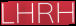
LHRH